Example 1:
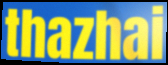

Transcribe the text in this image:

thazhai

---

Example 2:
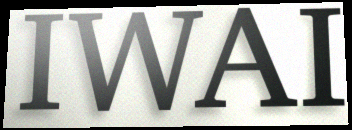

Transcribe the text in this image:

IWAI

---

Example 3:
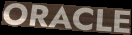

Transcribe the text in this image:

ORACLE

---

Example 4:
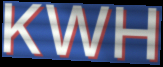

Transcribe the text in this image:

KWH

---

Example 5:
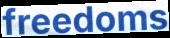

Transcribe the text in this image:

freedoms